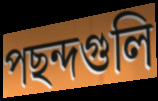
পছন্দগুলি